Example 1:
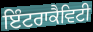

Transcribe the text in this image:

ਇੰਟਰਾਕੈਵਿਟੀ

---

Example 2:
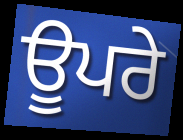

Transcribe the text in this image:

ਊਪਰੇ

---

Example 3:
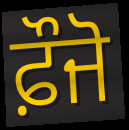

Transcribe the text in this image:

ਫ਼ੌਜੋ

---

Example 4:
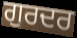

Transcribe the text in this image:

ਗੁਰਦਰ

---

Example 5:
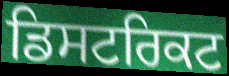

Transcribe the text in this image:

ਡਿਸਟਰਿਕਟ